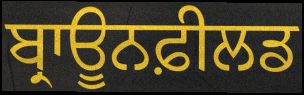
ਬ੍ਰਾਊਨਫ਼ੀਲਡ